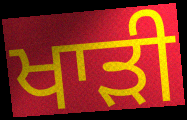
ਖਾੜੀ